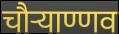
चौऱ्याण्णव